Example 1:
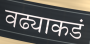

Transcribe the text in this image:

वढ्याकडं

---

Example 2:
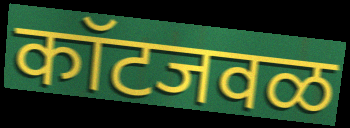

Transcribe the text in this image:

कॉटजवळ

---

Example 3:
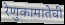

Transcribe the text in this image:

रेणुकामातेची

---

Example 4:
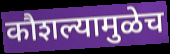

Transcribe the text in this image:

कौशल्यामुळेच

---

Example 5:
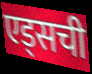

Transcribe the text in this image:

एड्सची